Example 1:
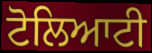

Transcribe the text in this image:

ਟੋਲਿਆਟੀ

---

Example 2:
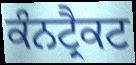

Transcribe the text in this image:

ਕੰਨਟ੍ਰੈਕਟ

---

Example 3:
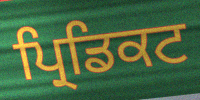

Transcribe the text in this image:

ਪ੍ਰਿਡਿਕਟ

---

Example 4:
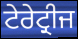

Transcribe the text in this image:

ਟੇਰੇਟ੍ਰੀਜ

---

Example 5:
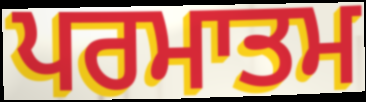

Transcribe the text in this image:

ਪਰਮਾਤਮ